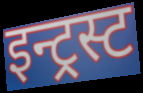
इन्ट्रस्ट